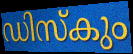
ഡിസ്കും